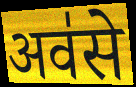
अव॑से